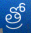
త్రో